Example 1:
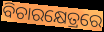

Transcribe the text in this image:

ବିଚାରକ୍ଷେତ୍ରରେ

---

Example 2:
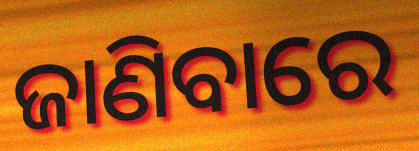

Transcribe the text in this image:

ଜାଣିବାରେ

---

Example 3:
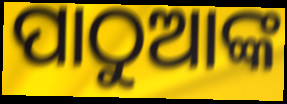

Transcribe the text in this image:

ପାଠୁଆଙ୍କ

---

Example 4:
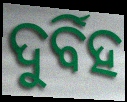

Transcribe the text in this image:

ଦୁର୍ବିହ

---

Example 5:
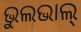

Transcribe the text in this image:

ଭୁଲଭାଲ୍